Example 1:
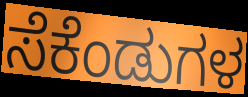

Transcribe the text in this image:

ಸೆಕೆಂಡುಗಳ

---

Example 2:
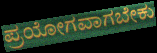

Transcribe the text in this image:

ಪ್ರಯೋಗವಾಗಬೇಕು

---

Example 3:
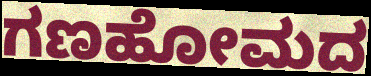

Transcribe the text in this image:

ಗಣಹೋಮದ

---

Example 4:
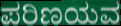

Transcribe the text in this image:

ಪರಿಣಯವ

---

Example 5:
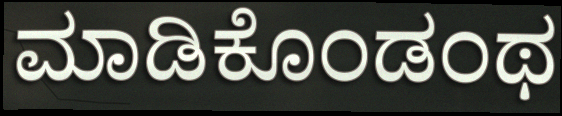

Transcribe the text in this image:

ಮಾಡಿಕೊಂಡಂಥ